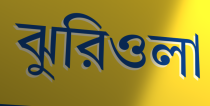
ঝুরিওলা